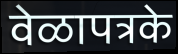
वेळापत्रके